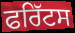
ਫਰਿੱਟਸ